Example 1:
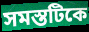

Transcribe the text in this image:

সমস্তটিকে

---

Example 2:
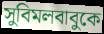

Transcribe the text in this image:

সুবিমলবাবুকে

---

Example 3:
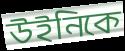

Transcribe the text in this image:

উইনিকে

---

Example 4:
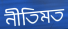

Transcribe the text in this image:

নীতিমত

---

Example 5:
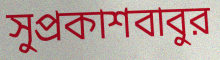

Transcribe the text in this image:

সুপ্রকাশবাবুর